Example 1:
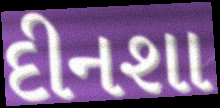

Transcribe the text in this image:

દીનશા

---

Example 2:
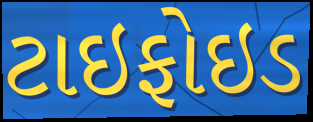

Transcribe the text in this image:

ટાઇફોઇડ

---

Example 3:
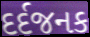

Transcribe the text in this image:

દર્દજનક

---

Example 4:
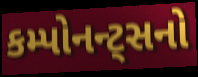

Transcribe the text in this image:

કમ્પોનન્ટ્સનો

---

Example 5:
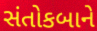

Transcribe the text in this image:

સંતોકબાને